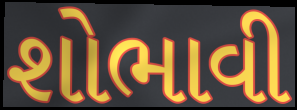
શોભાવી